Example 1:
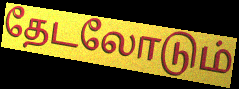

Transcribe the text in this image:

தேடலோடும்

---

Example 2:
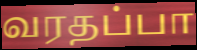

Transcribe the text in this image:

வரதப்பா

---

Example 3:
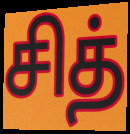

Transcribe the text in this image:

சித்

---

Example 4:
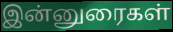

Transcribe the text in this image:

இன்னுரைகள்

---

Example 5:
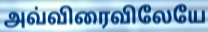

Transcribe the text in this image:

அவ்விரைவிலேயே